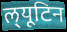
ल्यूटिन